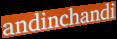
andinchandi